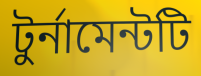
টুর্নামেন্টটি